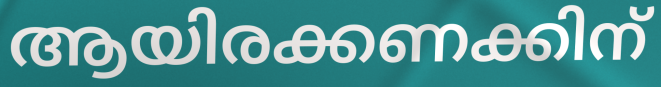
ആയിരക്കണക്കിന്